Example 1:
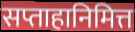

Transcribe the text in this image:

सप्ताहानिमित्त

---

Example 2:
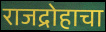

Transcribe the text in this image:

राजद्रोहाचा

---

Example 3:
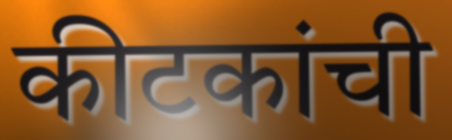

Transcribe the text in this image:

कीटकांची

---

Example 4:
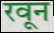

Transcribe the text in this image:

रवून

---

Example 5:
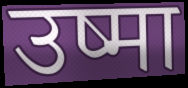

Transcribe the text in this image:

उष्मा